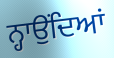
ਨ੍ਹਾਉਂਦਿਆਂ